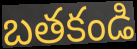
బతకండి